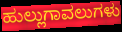
ಹುಲ್ಲುಗಾವಲುಗಳು